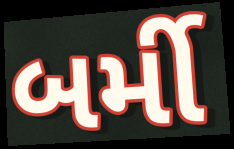
બર્મી